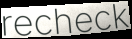
recheck